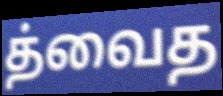
த்வைத